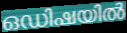
ഒഡിഷയിൽ